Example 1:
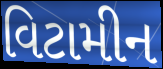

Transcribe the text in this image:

વિટામીન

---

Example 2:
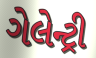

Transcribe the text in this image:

ગેલેન્ટ્રી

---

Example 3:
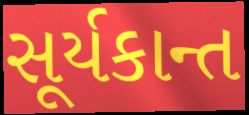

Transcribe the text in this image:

સૂર્યકાન્ત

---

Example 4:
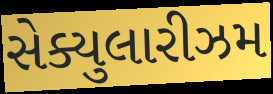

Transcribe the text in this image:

સેક્યુલારીઝમ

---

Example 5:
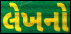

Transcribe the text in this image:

લેખનો